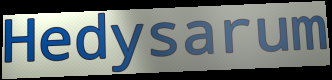
Hedysarum